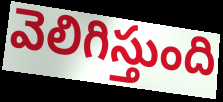
వెలిగిస్తుంది